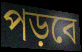
পড়বে